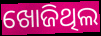
ଖୋଜିଥିଲ